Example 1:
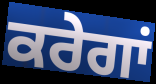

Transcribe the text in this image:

ਕਰੇਗਾਂ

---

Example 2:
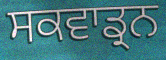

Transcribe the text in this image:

ਸਕਵਾਡ੍ਰਨ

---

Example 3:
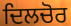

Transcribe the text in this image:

ਦਿਲਚੋਰ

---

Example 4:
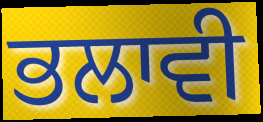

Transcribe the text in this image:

ਭਲਾਵੀ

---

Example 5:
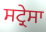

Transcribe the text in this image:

ਸਟ੍ਰੇਸਾ